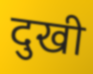
दुखी